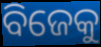
ବିଜେକୁ